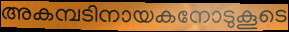
അകമ്പടിനായകനോടുകൂടെ